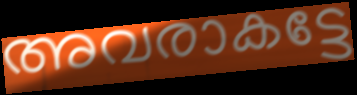
അവരാകട്ടേ